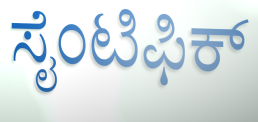
ಸೈಂಟಿಫಿಕ್